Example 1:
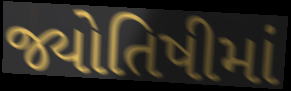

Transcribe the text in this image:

જ્યોતિષીમાં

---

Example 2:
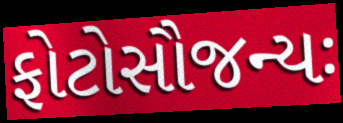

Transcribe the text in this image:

ફોટોસૌજન્યઃ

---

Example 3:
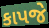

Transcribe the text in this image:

કાપજે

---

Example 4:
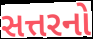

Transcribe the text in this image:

સત્તરનો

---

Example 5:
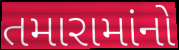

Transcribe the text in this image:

તમારામાંનો